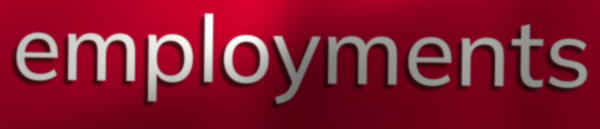
employments